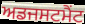
ਅਡਜਸਟਮੈਂਟ